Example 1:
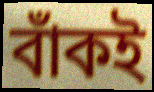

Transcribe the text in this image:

বাঁকই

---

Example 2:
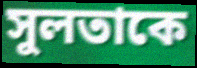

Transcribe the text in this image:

সুলতাকে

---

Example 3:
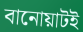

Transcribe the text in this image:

বানোয়াটই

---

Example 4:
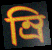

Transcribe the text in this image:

ম্রি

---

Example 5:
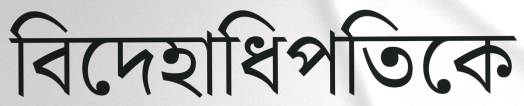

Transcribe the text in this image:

বিদেহাধিপতিকে